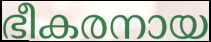
ഭീകരനായ